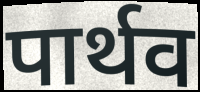
पार्थव